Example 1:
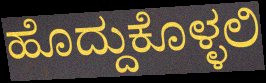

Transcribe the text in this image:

ಹೊದ್ದುಕೊಳ್ಳಲಿ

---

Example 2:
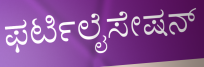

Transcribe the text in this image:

ಫರ್ಟಿಲೈಸೇಷನ್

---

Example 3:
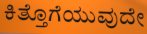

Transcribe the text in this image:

ಕಿತ್ತೊಗೆಯುವುದೇ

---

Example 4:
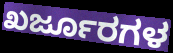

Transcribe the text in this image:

ಖರ್ಜೂರಗಳ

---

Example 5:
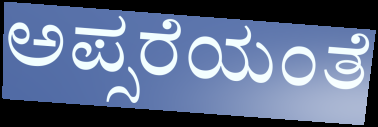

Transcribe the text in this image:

ಅಪ್ಸರೆಯಂತೆ